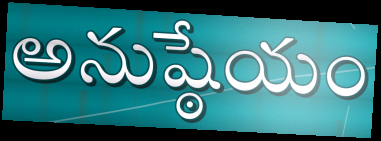
అనుష్ఠేయం